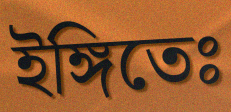
ইঙ্গিতেঃ